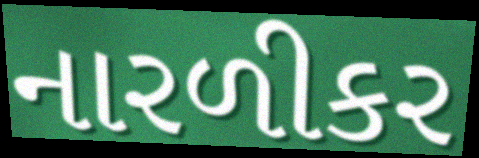
નારળીકર